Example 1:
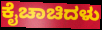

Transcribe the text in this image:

ಕೈಚಾಚಿದಳು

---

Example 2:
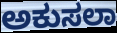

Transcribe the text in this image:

ಅಕುಸಲಾ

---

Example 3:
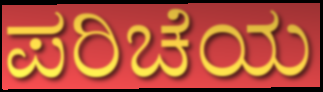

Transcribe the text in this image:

ಪರಿಚೆಯ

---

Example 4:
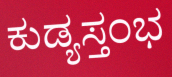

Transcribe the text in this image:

ಕುಡ್ಯಸ್ತಂಭ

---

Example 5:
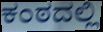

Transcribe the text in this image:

ಕಂಠದಲ್ಲಿ